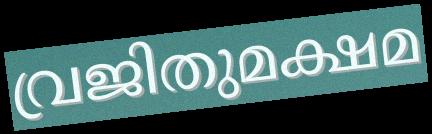
വ്രജിതുമക്ഷമ